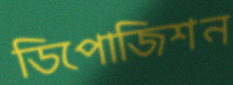
ডিপোজিশন